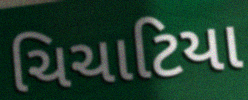
ચિચાટિયા